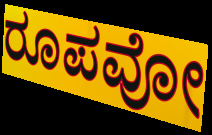
ರೂಪವೋ